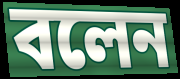
বলেন